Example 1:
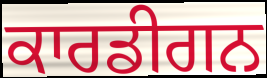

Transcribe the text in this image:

ਕਾਰਡੀਗਨ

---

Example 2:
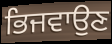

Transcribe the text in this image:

ਭਿਜਵਾਉਣ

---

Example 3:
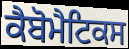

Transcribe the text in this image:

ਕੈਬੋਮੈਟਿਕਸ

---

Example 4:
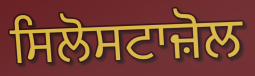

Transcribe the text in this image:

ਸਿਲੋਸਟਾਜ਼ੋਲ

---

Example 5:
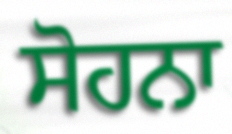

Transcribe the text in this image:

ਸੋਹਨਾ